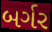
બર્ગર